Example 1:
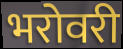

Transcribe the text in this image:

भरोवरी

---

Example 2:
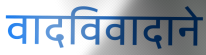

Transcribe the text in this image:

वादविवादाने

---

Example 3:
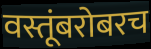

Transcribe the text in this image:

वस्तूंबरोबरच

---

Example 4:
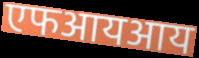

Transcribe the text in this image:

एफआयआय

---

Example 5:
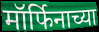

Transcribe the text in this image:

मॉर्फिनाच्या